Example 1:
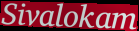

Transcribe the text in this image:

Sivalokam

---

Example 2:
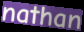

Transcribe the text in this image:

nathan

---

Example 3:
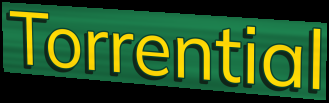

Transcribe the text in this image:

Torrential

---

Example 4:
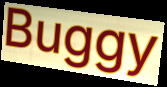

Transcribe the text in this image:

Buggy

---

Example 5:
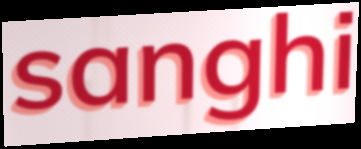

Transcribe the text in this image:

sanghi